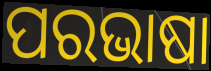
ପରଭାଷା